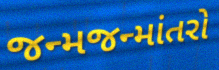
જન્મજન્માંતરો